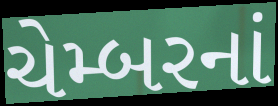
ચેમ્બરનાં